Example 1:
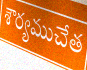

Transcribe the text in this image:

శౌర్యముచేత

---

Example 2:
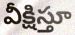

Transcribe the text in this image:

వీక్షిస్తూ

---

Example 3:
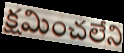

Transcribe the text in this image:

క్షమించలేని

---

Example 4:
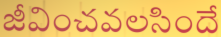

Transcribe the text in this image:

జీవించవలసిందే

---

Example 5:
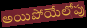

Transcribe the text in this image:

అయిపోయేలోపు